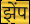
झेंप